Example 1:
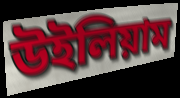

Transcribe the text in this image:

উইলিয়াম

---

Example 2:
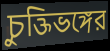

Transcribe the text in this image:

চুক্তিভঙ্গের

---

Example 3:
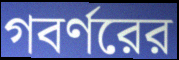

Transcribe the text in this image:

গবর্ণরের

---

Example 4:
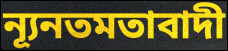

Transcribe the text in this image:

ন্যূনতমতাবাদী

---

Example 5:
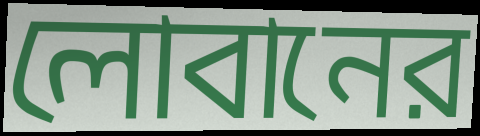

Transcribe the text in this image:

লোবানের